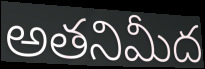
అతనిమీద